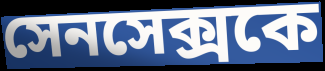
সেনসেক্সকে